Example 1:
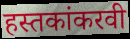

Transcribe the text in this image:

हस्तकांकरवी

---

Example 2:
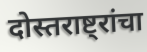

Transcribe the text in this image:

दोस्तराष्ट्रांचा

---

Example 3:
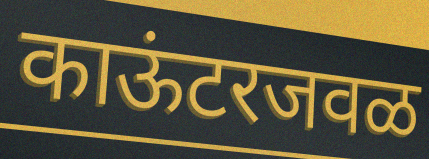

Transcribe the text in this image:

काऊंटरजवळ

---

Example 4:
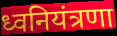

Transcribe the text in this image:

ध्वनियंत्रणा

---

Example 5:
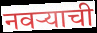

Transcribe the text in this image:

नवऱ्याची